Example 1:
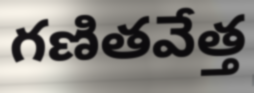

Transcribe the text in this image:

గణితవేత్త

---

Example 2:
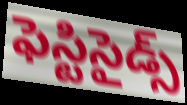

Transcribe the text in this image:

ఫెస్టిసైడ్స్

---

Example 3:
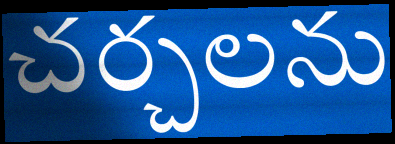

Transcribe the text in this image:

చర్చలను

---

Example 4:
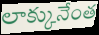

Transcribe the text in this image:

లాక్కునేంత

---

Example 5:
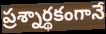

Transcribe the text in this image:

ప్రశ్నార్థకంగానే